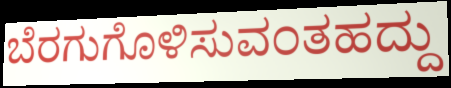
ಬೆರಗುಗೊಳಿಸುವಂತಹದ್ದು